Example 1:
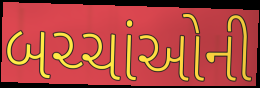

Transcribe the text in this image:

બચ્ચાંઓની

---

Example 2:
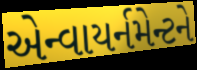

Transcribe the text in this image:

એન્વાયર્નમેન્ટને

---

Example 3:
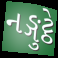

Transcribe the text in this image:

નઙ્ગુટ્ઠે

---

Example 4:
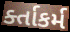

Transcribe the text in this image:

ર્ક્તાકર્મ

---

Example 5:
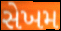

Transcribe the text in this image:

સેખમ